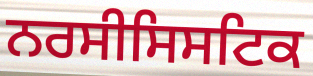
ਨਰਸੀਸਿਸਟਿਕ